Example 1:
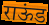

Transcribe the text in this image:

राऊंड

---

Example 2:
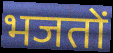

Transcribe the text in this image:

भजतों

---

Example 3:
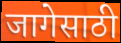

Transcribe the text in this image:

जागेसाठी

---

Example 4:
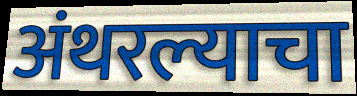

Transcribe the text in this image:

अंथरल्याचा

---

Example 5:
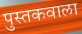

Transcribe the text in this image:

पुस्तकवाला